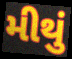
મીથું